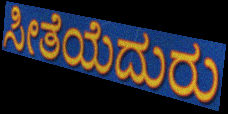
ಸೀತೆಯೆದುರು